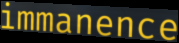
immanence